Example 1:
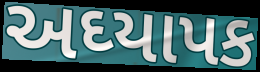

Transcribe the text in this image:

અઘ્યાપક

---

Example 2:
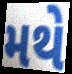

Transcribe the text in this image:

મથે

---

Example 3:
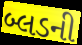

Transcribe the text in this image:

બ્લડની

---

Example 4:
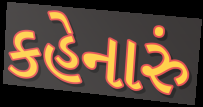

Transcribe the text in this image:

કહેનારું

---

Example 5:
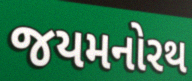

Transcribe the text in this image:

જયમનોરથ